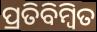
ପ୍ରତିବିମ୍ବିତ